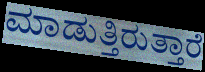
ಮಾಡುತ್ತಿರುತ್ತಾರೆ